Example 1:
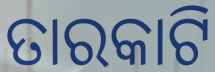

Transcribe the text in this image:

ତାରକାଟି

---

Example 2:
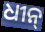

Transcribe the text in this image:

ଧୀନ୍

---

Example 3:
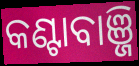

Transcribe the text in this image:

କଣ୍ଟାବାଞ୍ଜି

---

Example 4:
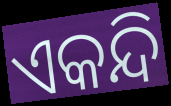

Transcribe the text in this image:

ଏକନ୍ଦି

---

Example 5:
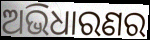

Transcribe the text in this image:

ଅଭିଧାରଣର